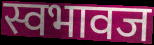
स्वभावज